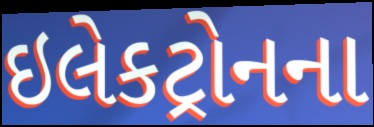
ઇલેકટ્રોનના